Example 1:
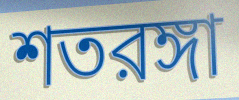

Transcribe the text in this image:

শতরঙ্গা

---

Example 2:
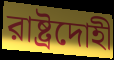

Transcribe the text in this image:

রাষ্ট্রদোহী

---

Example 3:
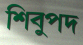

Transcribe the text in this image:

শিবুপদ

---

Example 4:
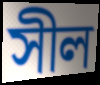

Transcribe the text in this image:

সীল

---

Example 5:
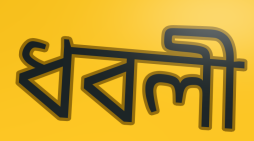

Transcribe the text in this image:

ধবলী